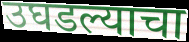
उघडल्याचा